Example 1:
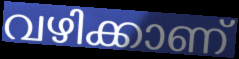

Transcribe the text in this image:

വഴിക്കാണ്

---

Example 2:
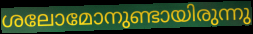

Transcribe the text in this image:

ശലോമോനുണ്ടായിരുന്നു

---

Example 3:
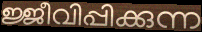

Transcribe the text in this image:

ജ്ജീവിപ്പിക്കുന്ന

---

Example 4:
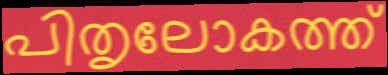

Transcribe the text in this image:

പിതൃലോകത്ത്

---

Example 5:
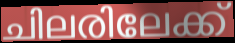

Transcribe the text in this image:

ചിലരിലേക്ക്